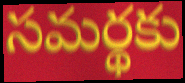
సమర్థకు